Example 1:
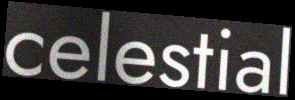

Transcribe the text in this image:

celestial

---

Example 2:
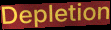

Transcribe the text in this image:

Depletion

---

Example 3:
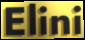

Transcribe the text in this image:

Elini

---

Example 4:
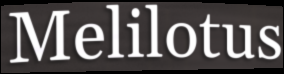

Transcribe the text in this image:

Melilotus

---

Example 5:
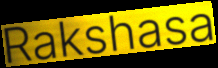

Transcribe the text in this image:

Rakshasa